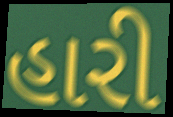
હારી